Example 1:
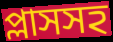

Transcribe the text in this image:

প্লাসসহ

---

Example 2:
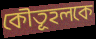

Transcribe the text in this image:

কৌতূহলকে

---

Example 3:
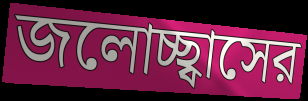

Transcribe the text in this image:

জলোচ্ছ্বাসের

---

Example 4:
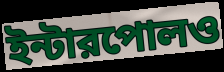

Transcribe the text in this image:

ইন্টারপোলও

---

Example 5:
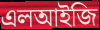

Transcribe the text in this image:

এলআইজি